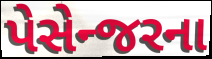
પેસેન્જરના